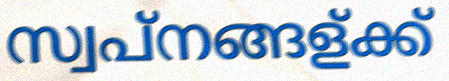
സ്വപ്നങ്ങള്ക്ക്